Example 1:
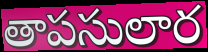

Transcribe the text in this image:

తాపసులార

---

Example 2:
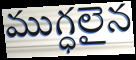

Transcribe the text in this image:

ముగ్ధలైన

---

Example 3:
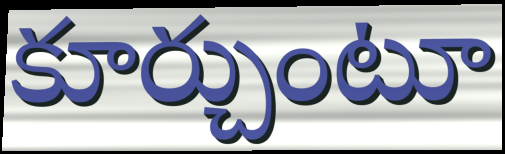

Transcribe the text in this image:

కూర్చుంటూ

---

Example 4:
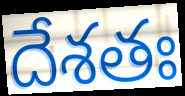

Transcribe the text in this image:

దేశతః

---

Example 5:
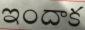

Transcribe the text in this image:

ఇందాక